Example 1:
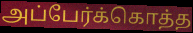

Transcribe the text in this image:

அப்பேர்க்கொத்த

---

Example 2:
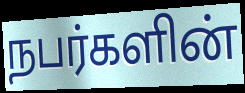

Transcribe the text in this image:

நபர்களின்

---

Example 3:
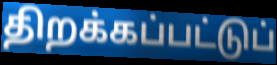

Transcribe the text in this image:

திறக்கப்பட்டுப்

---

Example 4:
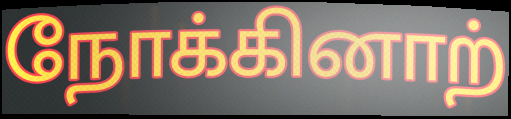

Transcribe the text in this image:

நோக்கினாற்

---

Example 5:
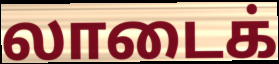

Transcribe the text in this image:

லாடைக்